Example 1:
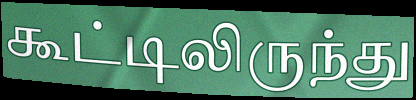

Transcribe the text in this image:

கூட்டிலிருந்து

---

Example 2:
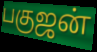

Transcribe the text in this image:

பகுஜன்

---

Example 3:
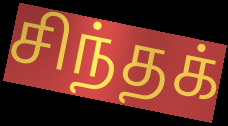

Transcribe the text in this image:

சிந்தக்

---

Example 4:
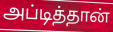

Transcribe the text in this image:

அப்டித்தான்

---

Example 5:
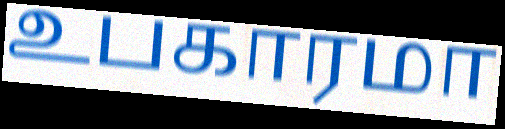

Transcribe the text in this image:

உபகாரமா